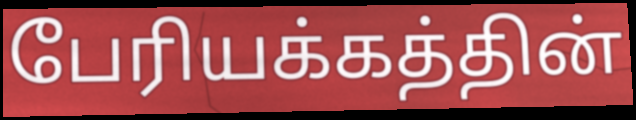
பேரியக்கத்தின்